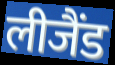
लीजैंड